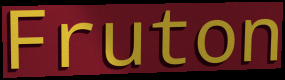
Fruton